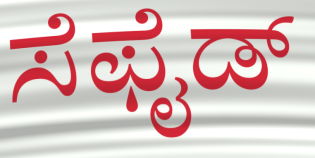
ಸೆಫೈಡ್